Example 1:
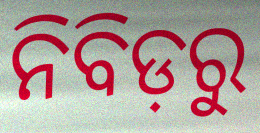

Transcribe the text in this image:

ନିବିଡ଼ରୁ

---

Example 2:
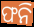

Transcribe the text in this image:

ଫନି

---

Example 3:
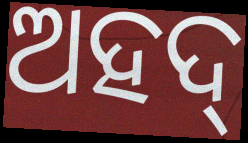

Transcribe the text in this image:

ଅହଦ୍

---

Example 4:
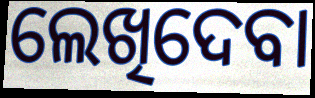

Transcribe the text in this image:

ଲେଖିଦେବା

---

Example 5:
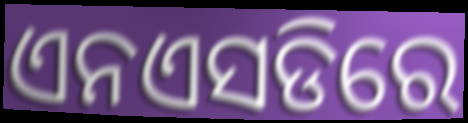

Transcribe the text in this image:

ଏନଏସଡିରେ